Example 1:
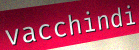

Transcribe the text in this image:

vacchindi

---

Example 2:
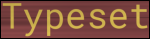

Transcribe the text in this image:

Typeset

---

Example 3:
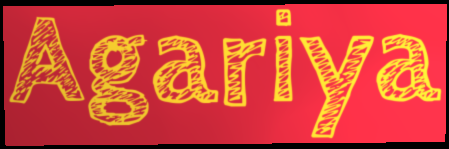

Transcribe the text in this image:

Agariya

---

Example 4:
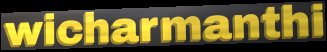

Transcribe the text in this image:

wicharmanthi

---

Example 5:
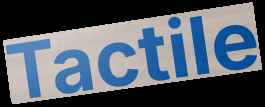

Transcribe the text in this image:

Tactile